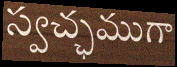
స్వచ్ఛముగా